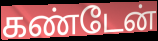
கண்டேன்